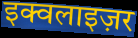
इक्वलाइज़र